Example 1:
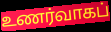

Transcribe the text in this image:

உணர்வாகப்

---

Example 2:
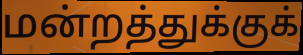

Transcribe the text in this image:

மன்றத்துக்குக்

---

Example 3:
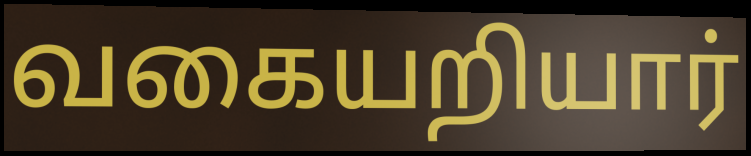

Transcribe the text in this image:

வகையறியார்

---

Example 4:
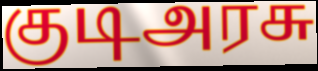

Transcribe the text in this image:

குடிஅரசு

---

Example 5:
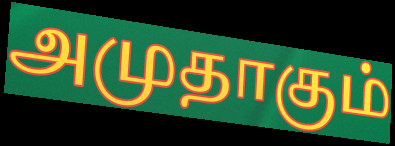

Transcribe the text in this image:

அமுதாகும்